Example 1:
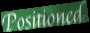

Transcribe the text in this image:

Positioned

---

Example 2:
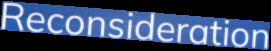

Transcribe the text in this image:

Reconsideration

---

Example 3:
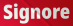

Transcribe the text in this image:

Signore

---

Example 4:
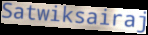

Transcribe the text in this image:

Satwiksairaj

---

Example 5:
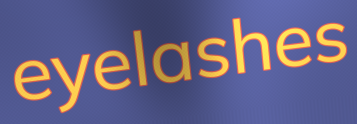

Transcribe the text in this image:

eyelashes